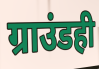
ग्राउंडही